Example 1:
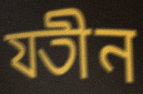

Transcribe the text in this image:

যতীন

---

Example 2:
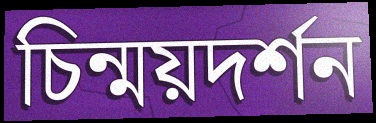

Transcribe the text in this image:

চিন্ময়দর্শন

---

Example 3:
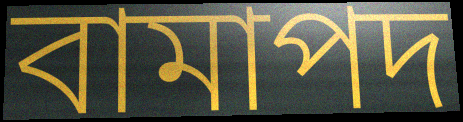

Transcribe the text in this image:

বামাপদ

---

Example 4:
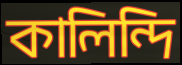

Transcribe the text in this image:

কালিন্দি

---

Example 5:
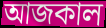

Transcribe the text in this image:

আজকাল